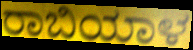
ರಾಬಿಯಾಳ